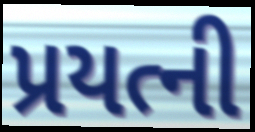
પ્રયત્ની